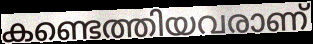
കണ്ടെത്തിയവരാണ്